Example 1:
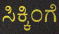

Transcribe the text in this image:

ಸಿಕ್ಕಿಂಗೆ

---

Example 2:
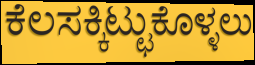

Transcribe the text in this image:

ಕೆಲಸಕ್ಕಿಟ್ಟುಕೊಳ್ಳಲು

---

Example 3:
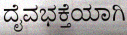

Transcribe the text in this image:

ದೈವಭಕ್ತೆಯಾಗಿ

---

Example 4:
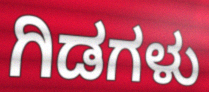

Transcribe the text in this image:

ಗಿಡಗಳು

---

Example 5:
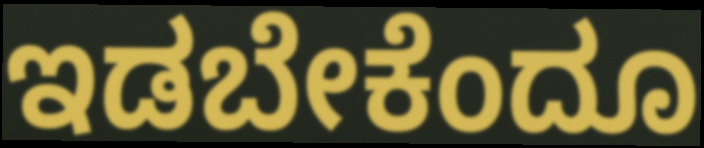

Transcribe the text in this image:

ಇಡಬೇಕೆಂದೂ